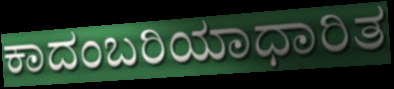
ಕಾದಂಬರಿಯಾಧಾರಿತ